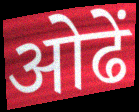
ओढें